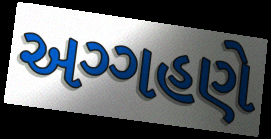
અગ્ગહણે